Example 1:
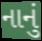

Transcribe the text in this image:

નાનું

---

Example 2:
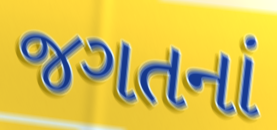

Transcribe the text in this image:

જગતનાં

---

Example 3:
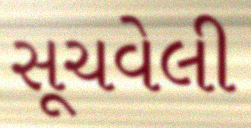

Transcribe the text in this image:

સૂચવેલી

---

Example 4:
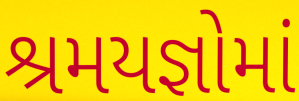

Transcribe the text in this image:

શ્રમયજ્ઞોમાં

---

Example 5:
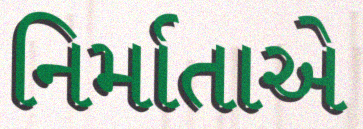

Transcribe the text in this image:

નિર્માતાએ